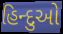
હિન્દુઓ